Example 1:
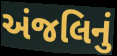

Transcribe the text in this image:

અંજલિનું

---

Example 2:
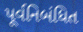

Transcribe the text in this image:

પૂર્વનિબંધિત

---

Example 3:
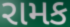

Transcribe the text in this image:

રામક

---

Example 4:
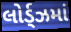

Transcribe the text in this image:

લોર્ડ્ઝમાં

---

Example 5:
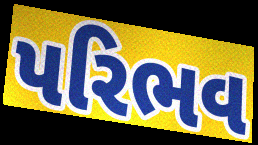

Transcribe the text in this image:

પરિભવ